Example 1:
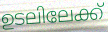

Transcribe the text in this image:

ഉടലിലേക്ക്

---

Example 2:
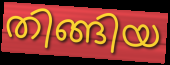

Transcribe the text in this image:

തിങ്ങിയ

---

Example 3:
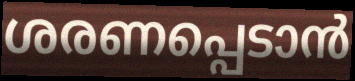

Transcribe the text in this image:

ശരണപ്പെടാൻ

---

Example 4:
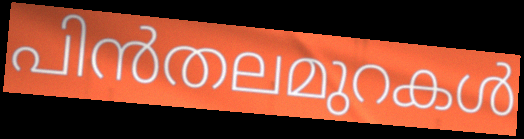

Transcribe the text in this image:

പിൻതലമുറകൾ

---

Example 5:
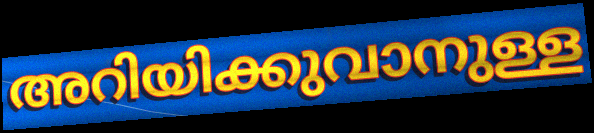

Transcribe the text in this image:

അറിയിക്കുവാനുള്ള